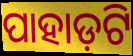
ପାହାଡ଼ଟି